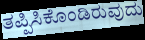
ತಪ್ಪಿಸಿಕೊಂಡಿರುವುದು